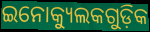
ଇନୋକ୍ଯୁଲକଗୁଡ଼ିକ